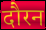
दौरन